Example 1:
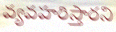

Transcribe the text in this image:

వ్యవహరిస్తారని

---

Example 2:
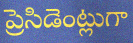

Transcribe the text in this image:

ప్రెసిడెంట్లుగా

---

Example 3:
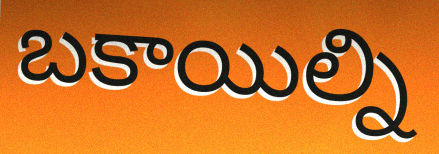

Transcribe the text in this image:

బకాయిల్ని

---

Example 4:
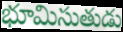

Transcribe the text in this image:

భూమిసుతుడు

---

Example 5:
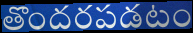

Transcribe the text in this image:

తొందరపడటం